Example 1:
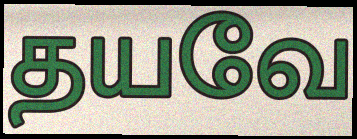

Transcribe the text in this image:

தயவே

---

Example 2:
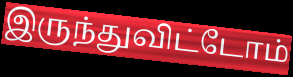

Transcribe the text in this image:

இருந்துவிட்டோம்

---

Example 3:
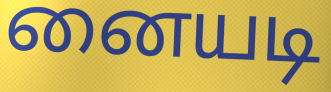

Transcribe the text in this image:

னையடி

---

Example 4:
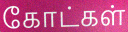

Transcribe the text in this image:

கோட்கள்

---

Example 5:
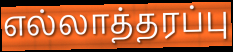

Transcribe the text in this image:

எல்லாத்தரப்பு